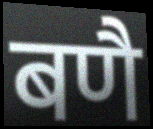
बणै